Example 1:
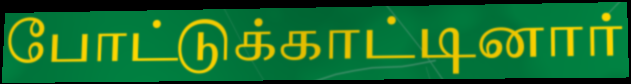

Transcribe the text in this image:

போட்டுக்காட்டினார்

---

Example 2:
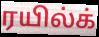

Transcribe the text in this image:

ரயில்க்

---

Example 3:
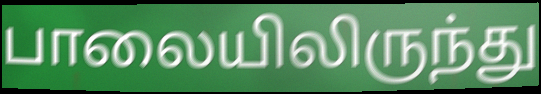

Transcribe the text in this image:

பாலையிலிருந்து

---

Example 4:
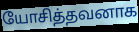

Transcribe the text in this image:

யோசித்தவனாக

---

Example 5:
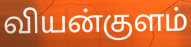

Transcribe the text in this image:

வியன்குளம்